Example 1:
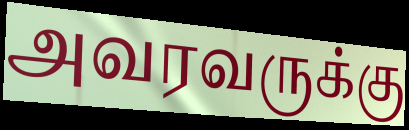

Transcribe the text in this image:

அவரவருக்கு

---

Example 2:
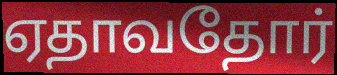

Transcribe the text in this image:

ஏதாவதோர்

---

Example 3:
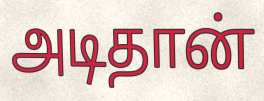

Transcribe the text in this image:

அடிதான்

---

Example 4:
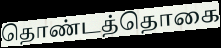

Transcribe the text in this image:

தொண்டத்தொகை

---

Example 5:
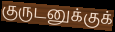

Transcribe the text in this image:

குருடனுக்குக்